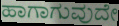
ಹಾಗಾಗುವುದೇ